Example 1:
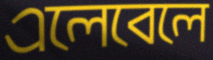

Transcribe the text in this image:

এলেবেলে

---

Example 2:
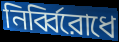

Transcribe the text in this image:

নির্ব্বিরোধে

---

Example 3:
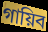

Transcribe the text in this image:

গায়িব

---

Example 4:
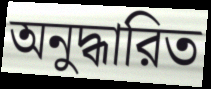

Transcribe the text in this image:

অনুদ্ধারিত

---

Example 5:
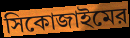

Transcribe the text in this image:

সিকোজাইমের